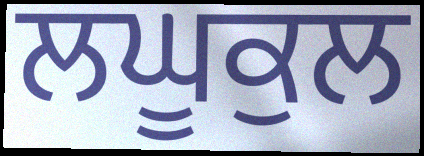
ਲਘੂਕੁਲ